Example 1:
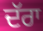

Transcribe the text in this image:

ਦੱਰਾ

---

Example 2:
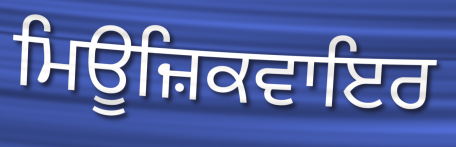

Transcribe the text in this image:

ਮਿਊਜ਼ਿਕਵਾਇਰ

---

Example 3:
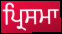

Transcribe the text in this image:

ਪ੍ਰਿਸਮਾ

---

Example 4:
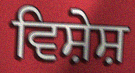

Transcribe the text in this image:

ਵਿਸ਼ੇਸ਼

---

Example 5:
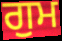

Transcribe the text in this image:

ਗੁਮ